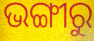
ଭଙ୍ଗୀରୁ